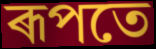
ৰূপতে